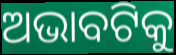
ଅଭାବଟିକୁ